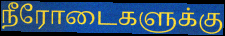
நீரோடைகளுக்கு